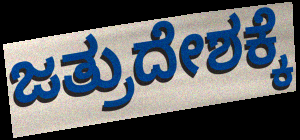
ಜತ್ರುದೇಶಕ್ಕೆ